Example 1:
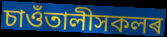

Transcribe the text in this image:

চাওঁতালীসকলৰ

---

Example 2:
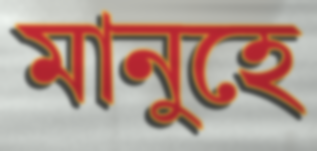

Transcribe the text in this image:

মানুহে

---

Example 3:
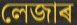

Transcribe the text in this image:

লেজাৰ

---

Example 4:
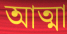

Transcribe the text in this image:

আত্মা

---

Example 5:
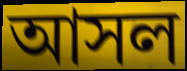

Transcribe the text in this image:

আসল